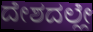
ದೇಶದಲ್ಲೇ